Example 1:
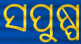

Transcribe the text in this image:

ସପୁଷ୍ପ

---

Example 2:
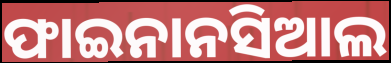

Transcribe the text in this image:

ଫାଇନାନସିଆଲ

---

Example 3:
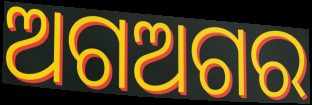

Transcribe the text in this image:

ଅଗଅଗର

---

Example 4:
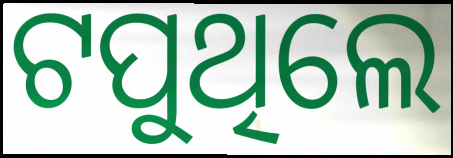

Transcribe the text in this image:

ଟପୁଥିଲେ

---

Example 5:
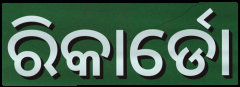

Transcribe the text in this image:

ରିକାର୍ଡୋ